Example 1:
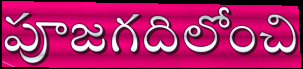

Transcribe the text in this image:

పూజగదిలోంచి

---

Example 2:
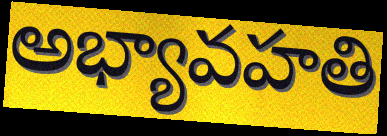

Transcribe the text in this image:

అభ్యావహతి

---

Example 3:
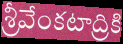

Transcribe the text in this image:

శ్రీవేంకటాద్రికి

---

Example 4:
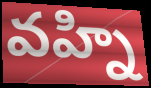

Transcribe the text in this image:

వహ్ని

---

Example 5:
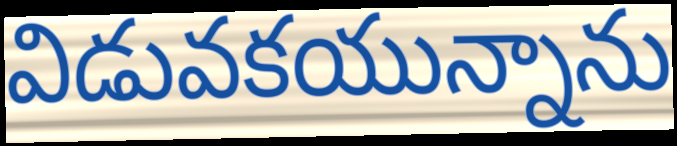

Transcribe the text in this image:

విడువకయున్నాను